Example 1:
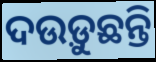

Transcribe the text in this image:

ଦଉଡ଼ୁଛନ୍ତି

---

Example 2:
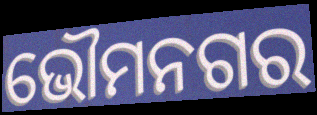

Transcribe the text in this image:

ଭୌମନଗର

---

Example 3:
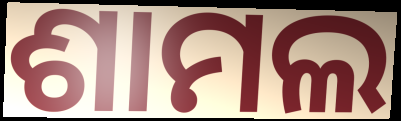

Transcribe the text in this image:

ଶାମଲ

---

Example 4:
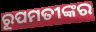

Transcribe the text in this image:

ରୂପମତୀଙ୍କର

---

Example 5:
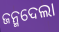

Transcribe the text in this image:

ଜନ୍ମଦେଲା